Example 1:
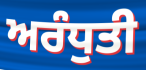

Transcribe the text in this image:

ਅਰੰਧੁਤੀ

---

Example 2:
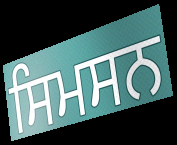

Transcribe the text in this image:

ਸਿਮਸਨ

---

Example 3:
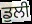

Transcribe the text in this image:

ਡੁਲੀ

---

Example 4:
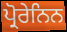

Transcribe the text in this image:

ਪ੍ਰੋਰੇਨਿਨ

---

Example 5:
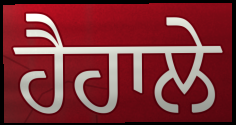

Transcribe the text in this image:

ਹੈਹਾਲੇ